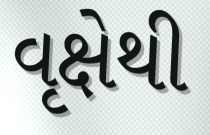
વૃક્ષેથી